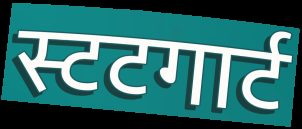
स्टटगार्ट